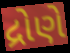
દ્રોણે